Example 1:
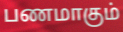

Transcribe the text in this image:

பணமாகும்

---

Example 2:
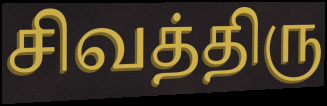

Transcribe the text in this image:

சிவத்திரு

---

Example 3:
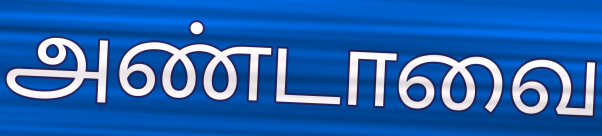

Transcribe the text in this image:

அண்டாவை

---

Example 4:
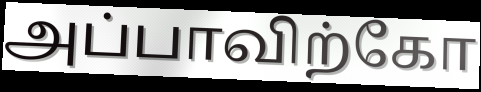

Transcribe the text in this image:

அப்பாவிற்கோ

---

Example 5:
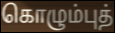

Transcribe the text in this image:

கொழும்புத்